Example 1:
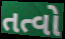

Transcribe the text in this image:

તત્વો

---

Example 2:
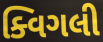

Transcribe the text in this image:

ક્વિગલી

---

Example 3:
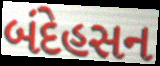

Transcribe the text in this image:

બંદેહસન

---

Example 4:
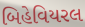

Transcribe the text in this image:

બિહેવિયરલ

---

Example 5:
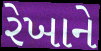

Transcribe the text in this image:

રેખાને